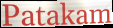
Patakam